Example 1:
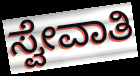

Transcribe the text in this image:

ಸ್ವೇವಾತಿ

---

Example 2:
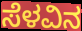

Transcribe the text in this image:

ಸೆಳವಿನ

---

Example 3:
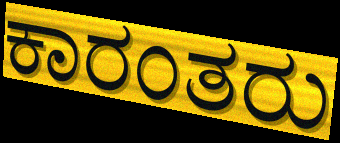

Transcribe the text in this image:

ಕಾರಂತರು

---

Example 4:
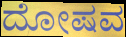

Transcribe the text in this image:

ದೋಷವ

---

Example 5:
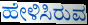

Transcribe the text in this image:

ಹೇಳಿಸಿರುವ